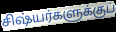
சிஷ்யர்களுக்குப்